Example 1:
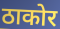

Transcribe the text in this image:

ठाकोर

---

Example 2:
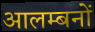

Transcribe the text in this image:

आलम्बनों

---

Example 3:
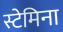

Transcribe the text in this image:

स्टेमिना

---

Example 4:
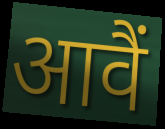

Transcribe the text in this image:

आवैं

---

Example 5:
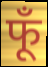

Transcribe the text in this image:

फूँ